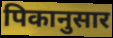
पिकानुसार